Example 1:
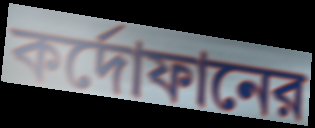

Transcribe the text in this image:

কর্দোফানের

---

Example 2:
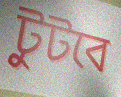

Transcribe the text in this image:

টুটবে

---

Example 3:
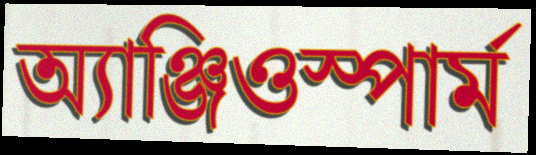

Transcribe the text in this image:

অ্যাঞ্জিওস্পার্ম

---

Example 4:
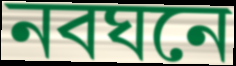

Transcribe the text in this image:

নবঘনে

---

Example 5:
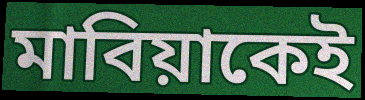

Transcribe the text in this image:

মাবিয়াকেই